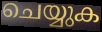
ചെയ്യുക